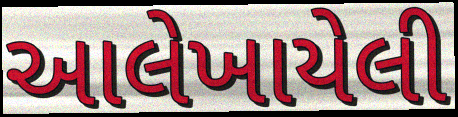
આલેખાયેલી